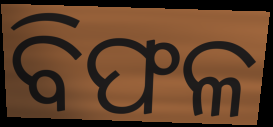
ବିଫଳ